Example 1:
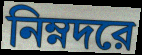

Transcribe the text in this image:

নিম্নদরে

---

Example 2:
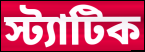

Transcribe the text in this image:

স্ট্যাটিক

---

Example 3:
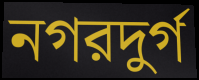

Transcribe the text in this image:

নগরদুর্গ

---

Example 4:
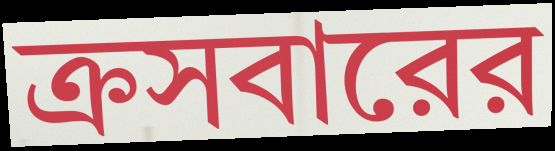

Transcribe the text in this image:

ক্রসবারের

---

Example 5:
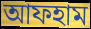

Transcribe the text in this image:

আফহাম